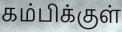
கம்பிக்குள்